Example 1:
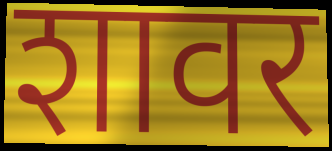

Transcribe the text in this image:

शावर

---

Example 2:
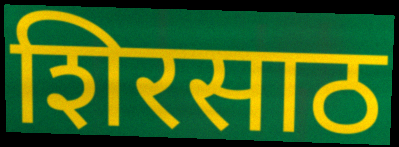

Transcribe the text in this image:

शिरसाठ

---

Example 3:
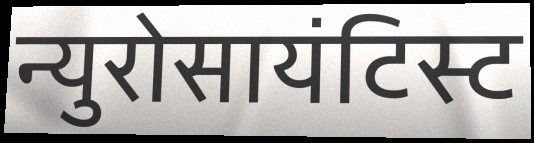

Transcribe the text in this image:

न्युरोसायंटिस्ट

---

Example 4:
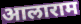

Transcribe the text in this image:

आलाराम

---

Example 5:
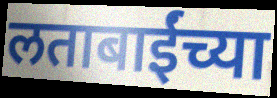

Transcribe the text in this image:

लताबाईंच्या